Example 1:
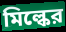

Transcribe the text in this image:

মিল্কের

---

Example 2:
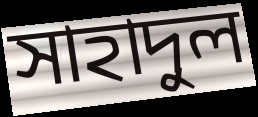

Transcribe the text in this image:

সাহাদুল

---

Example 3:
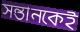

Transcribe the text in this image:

সন্তানকেই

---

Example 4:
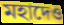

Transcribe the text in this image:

মহাদেও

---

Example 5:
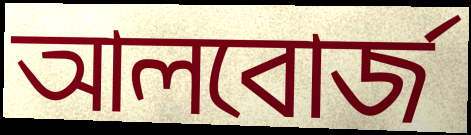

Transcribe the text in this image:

আলবোর্জ